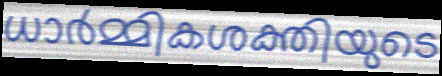
ധാർമ്മികശക്തിയുടെ